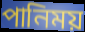
পানিময়